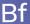
Bf